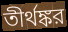
তীর্থঙ্কর